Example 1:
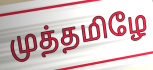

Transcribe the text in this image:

முத்தமிழே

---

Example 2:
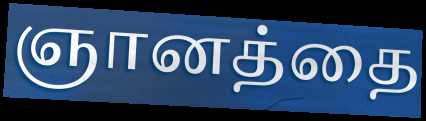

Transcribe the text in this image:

ஞானத்தை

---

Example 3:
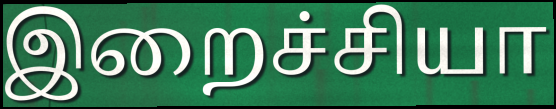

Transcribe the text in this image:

இறைச்சியா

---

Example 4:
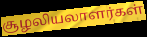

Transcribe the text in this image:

சூழலியலாளர்கள்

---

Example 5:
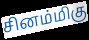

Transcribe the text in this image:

சினம்மிகு